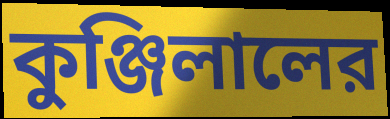
কুঞ্জিলালের